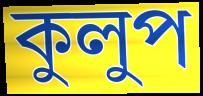
কুলুপ